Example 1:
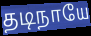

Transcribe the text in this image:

தடிநாயே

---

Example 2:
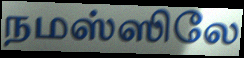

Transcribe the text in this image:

நமஸ்ஸிலே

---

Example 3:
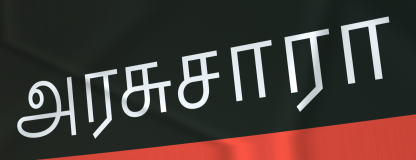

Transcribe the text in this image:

அரசுசாரா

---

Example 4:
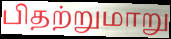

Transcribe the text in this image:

பிதற்றுமாறு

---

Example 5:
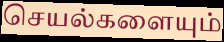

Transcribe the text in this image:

செயல்களையும்